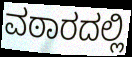
ವಠಾರದಲ್ಲಿ